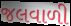
જલવાળી